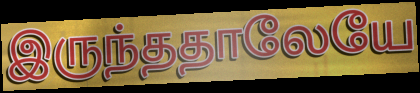
இருந்ததாலேயே